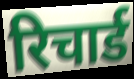
रिचार्ड